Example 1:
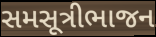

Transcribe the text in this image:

સમસૂત્રીભાજન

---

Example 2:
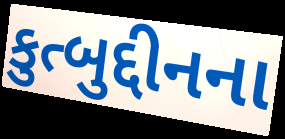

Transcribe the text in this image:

કુત્બુદ્દીનના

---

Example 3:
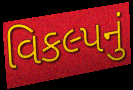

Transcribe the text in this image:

વિકલ્પનું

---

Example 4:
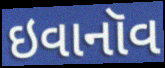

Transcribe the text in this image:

ઇવાનૉવ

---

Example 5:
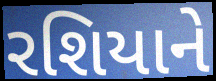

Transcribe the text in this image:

રશિયાને